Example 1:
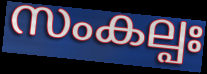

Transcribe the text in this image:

സംകല്പഃ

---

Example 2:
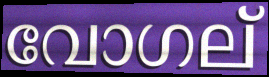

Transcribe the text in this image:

വോഗല്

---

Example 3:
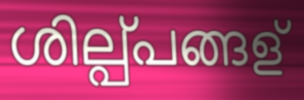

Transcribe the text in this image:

ശില്പ്പങ്ങള്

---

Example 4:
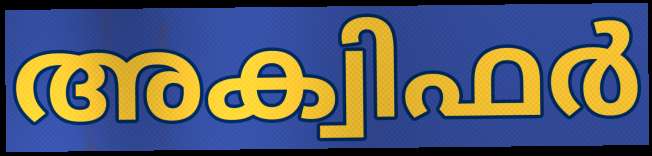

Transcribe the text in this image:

അക്വിഫർ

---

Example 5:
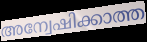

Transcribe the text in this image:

അന്വേഷിക്കാത്ത